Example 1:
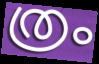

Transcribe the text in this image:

ത്രം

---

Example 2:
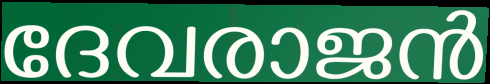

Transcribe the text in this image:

ദേവരാജൻ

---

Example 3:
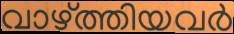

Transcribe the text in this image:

വാഴ്ത്തിയവർ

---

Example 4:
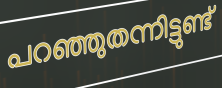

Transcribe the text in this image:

പറഞ്ഞുതന്നിട്ടുണ്ട്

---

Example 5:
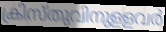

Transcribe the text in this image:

ക്രിസ്തുവിനുളളവർ